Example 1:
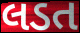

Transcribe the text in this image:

લડત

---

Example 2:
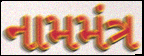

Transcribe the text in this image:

નામમંત્ર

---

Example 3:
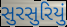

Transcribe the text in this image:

સુરસુરિયું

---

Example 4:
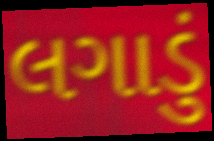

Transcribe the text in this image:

લગાડું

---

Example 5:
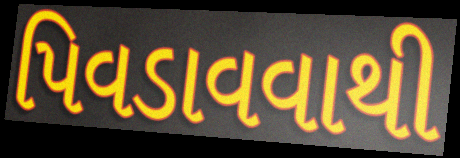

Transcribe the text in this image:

પિવડાવવાથી